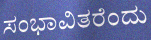
ಸಂಭಾವಿತರೆಂದು